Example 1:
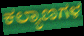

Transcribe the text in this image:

ಕಲ್ಯಾಣಗಳ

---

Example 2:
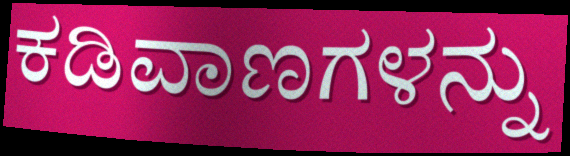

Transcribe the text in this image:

ಕಡಿವಾಣಗಳನ್ನು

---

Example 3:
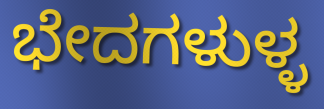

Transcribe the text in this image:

ಭೇದಗಳುಳ್ಳ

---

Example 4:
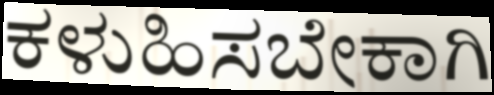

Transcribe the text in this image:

ಕಳುಹಿಸಬೇಕಾಗಿ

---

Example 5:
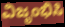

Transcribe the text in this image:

ವಿಜೃಂಭಿಸಿ